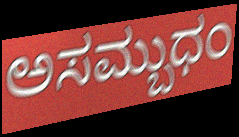
ಅಸಮ್ಬುಧಂ